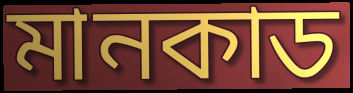
মানকাড